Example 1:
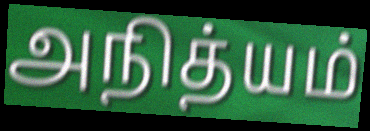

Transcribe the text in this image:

அநித்யம்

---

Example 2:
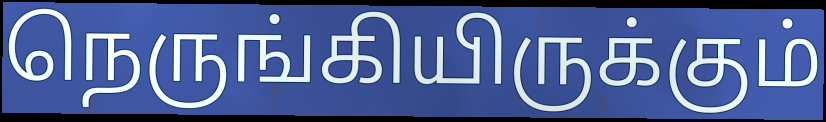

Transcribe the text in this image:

நெருங்கியிருக்கும்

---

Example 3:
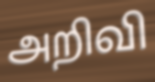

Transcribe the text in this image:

அறிவி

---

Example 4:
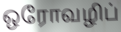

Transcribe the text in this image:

ஒரோவழிப்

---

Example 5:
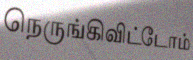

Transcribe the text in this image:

நெருங்கிவிட்டோம்